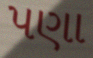
પણા